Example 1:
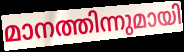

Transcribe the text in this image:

മാനത്തിന്നുമായി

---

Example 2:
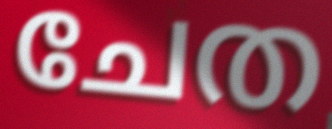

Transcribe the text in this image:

ചേത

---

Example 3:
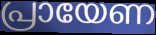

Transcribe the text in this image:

പ്രായേണ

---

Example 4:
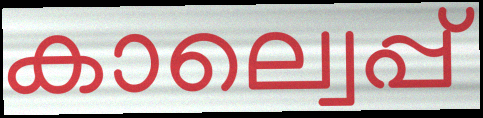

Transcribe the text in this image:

കാല്വെപ്പ്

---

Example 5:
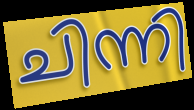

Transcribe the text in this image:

ചിന്നി